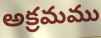
అక్రమము